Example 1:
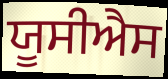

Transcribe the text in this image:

ਯੂਸੀਐਸ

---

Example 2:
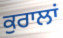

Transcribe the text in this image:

ਕੁਰਾਲਾਂ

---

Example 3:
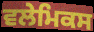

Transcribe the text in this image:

ਵਲੇਮਿਕਸ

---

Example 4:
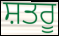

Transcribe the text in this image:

ਸ਼ਤਰੂ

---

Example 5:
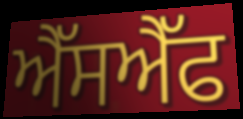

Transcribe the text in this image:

ਐੱਸਐੱਫ